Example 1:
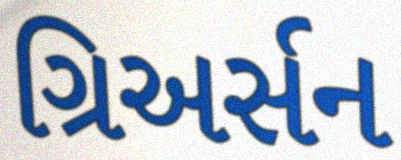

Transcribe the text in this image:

ગ્રિઅર્સન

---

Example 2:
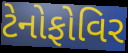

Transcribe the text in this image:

ટેનોફોવિર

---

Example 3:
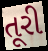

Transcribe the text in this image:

તૂરી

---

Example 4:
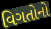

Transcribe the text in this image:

વિગતોનો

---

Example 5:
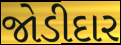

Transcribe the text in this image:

જોડીદાર